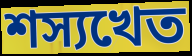
শস্যখেত